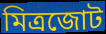
মিত্রজোট